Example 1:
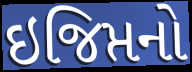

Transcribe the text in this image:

ઇજિપ્તનો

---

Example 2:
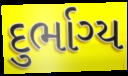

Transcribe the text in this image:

દુર્ભાગ્ય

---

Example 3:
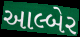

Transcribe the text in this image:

આલ્બેર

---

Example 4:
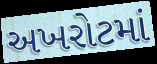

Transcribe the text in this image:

અખરોટમાં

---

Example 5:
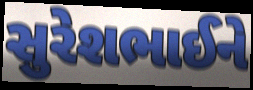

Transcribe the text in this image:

સુરેશભાઈને